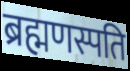
ब्रह्मणस्पति